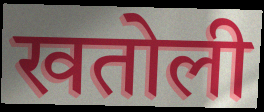
खतोली